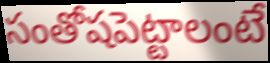
సంతోషపెట్టాలంటే